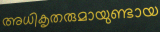
അധികൃതരുമായുണ്ടായ